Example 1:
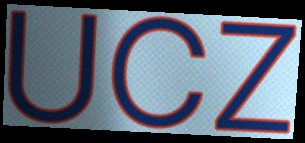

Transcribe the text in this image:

UCZ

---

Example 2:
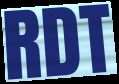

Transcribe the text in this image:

RDT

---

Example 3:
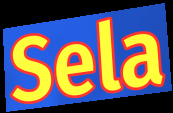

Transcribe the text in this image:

Sela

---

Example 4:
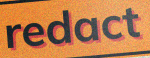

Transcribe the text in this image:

redact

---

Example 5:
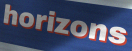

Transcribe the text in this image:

horizons